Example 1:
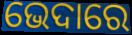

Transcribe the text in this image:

ଭେଦାରେ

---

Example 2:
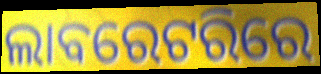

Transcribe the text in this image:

ଲାବରେଟରିରେ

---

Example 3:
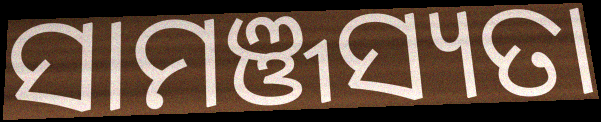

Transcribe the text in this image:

ସାମଞ୍ଜସ୍ୟତା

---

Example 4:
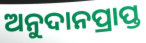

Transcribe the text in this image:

ଅନୁଦାନପ୍ରାପ୍ତ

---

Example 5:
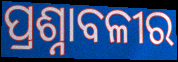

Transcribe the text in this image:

ପ୍ରଶ୍ନାବଳୀର